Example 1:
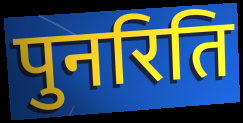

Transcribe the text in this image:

पुनरिति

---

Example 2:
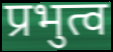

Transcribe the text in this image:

प्रभुत्व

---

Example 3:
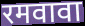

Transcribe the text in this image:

रमवावा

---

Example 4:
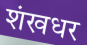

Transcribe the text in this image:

शंखधर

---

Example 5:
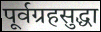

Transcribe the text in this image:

पूर्वग्रहसुद्धा